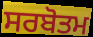
ਸਰਬੋਤਮ